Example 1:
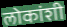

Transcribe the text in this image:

लोकांशी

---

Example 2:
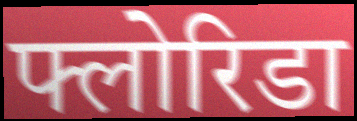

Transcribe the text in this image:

फ्लोरिडा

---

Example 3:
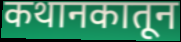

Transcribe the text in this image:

कथानकातून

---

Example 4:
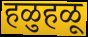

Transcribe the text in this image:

हळुहळू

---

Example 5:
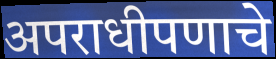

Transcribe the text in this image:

अपराधीपणाचे